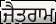
ਜੈਤਰਾਮ